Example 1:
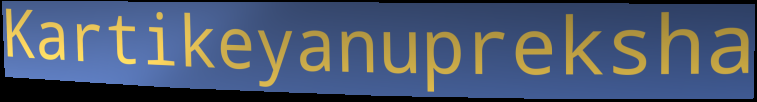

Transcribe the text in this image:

Kartikeyanupreksha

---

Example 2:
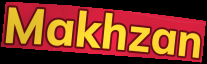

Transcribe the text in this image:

Makhzan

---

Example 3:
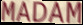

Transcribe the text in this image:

MADAM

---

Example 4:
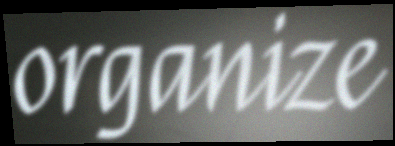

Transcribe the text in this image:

organize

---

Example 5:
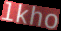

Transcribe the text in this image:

lkho